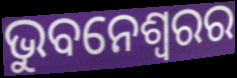
ଭୁବନେଶ୍ବରର